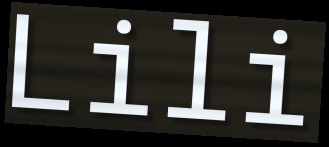
Lili